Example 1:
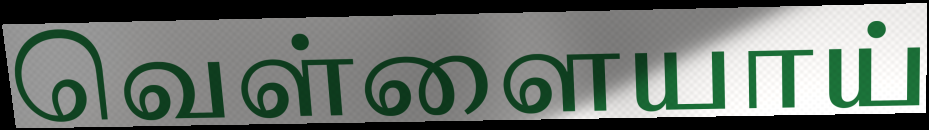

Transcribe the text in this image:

வெள்ளையாய்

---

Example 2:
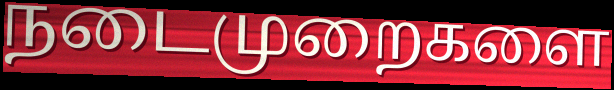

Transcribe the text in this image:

நடைமுறைகளை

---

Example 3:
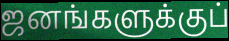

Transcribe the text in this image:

ஜனங்களுக்குப்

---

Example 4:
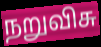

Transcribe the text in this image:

நறுவிசு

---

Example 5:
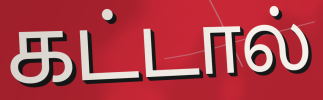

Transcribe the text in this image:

கட்டால்